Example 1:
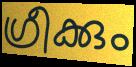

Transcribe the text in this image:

ഗ്രീക്കും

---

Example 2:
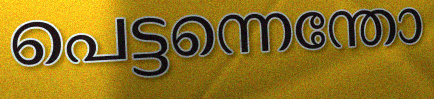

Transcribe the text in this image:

പെട്ടന്നെന്തോ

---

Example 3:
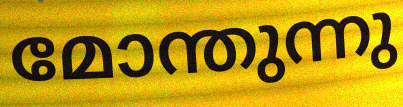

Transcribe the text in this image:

മോന്തുന്നു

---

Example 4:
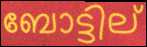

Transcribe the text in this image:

ബോട്ടില്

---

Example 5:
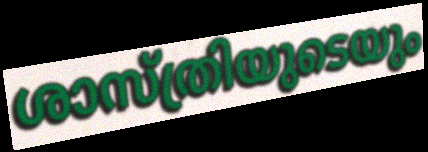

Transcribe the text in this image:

ശാസ്ത്രിയുടെയും